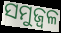
ସମୁଜ୍ୱଳ